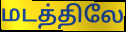
மடத்திலே